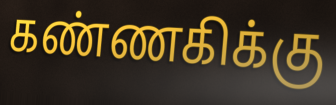
கண்ணகிக்கு